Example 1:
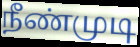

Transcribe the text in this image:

நீண்முடி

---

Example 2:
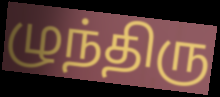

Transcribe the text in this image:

ழுந்திரு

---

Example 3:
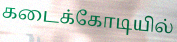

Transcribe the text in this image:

கடைக்கோடியில்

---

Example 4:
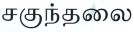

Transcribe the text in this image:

சகுந்தலை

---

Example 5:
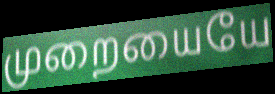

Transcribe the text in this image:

முறையையே